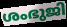
ശംഭുജി